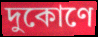
দুকোণে